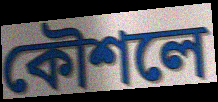
কৌশলে